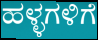
ಹಳ್ಳಗಳಿಗೆ